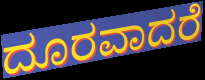
ದೂರವಾದರೆ